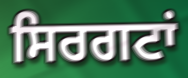
ਸਿਰਗਟਾਂ